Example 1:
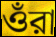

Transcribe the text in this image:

ওঁরা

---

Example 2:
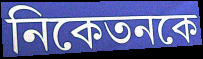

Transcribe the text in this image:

নিকেতনকে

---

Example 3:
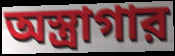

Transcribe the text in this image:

অস্ত্রাগার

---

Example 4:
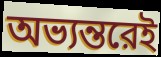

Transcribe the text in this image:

অভ্যন্তরেই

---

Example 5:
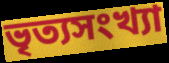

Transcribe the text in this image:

ভৃত্যসংখ্যা